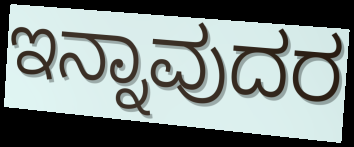
ಇನ್ನಾವುದರ